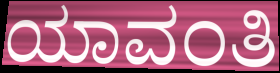
ಯಾವಂತಿ